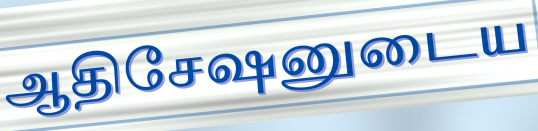
ஆதிசேஷனுடைய